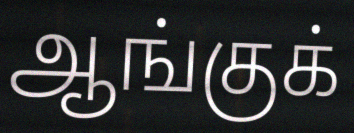
ஆங்குக்